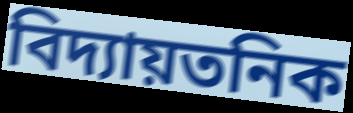
বিদ্যায়তনিক